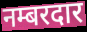
नम्बरदार